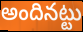
అందినట్టు